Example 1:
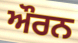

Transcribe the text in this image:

ਔਰਨ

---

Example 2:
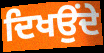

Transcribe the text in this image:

ਦਿਖਉਂਦੇ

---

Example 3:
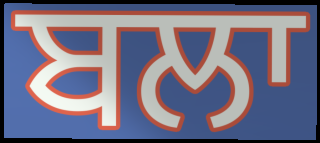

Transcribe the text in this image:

ਬਲਾ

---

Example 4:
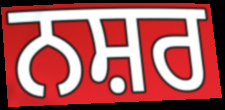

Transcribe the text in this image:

ਨਸ਼ਰ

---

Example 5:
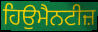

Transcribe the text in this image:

ਹਿਉਮੈਨਟੀਜ਼